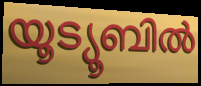
യൂട്യൂബിൽ